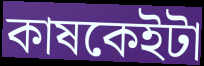
কাষকেইটা